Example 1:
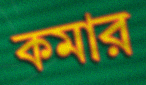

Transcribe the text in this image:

কমার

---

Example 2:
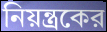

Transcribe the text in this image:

নিয়ন্ত্রকের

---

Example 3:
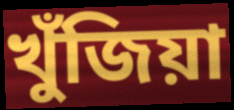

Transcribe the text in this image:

খুঁজিয়া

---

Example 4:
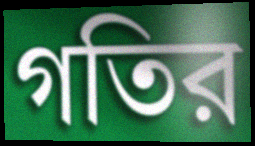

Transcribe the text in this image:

গতির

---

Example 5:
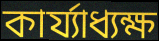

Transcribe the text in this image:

কার্য্যাধ্যক্ষ